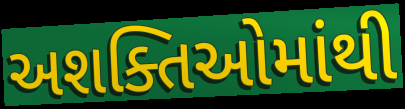
અશક્તિઓમાંથી